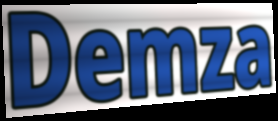
Demza